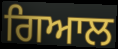
ਗਿਆਲ